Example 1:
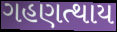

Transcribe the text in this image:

ગહણત્થાય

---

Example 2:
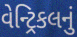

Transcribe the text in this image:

વેન્ટ્રિકલનું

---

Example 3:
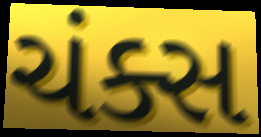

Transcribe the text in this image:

ચંક્સ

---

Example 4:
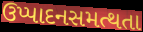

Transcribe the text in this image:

ઉપ્પાદનસમત્થતા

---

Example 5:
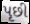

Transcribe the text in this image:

પૃછી